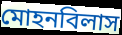
মোহনবিলাস